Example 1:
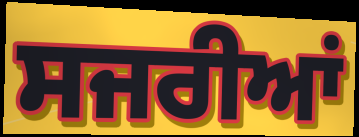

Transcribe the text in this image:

ਸਜਰੀਆਂ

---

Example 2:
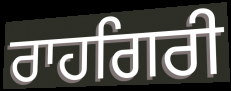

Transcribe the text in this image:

ਰਾਹਗਿਰੀ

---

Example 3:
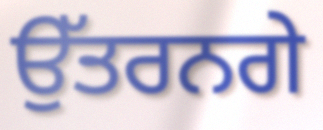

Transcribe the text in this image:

ਉੱਤਰਨਗੇ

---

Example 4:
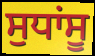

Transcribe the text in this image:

ਸੁਧਾਂਸੂ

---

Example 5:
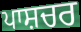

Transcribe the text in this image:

ਪਾਸ਼ਚਰ